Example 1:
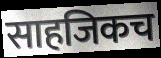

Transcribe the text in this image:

साहजिकच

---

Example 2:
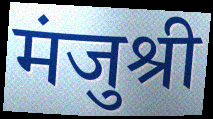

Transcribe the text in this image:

मंजुश्री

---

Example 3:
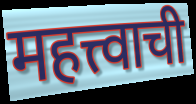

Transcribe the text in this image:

महत्त्वाची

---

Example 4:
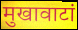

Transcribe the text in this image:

मुखावाटां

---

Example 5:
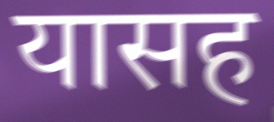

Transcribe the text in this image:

यासह